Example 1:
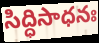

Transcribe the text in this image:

సిద్ధిసాధనః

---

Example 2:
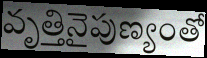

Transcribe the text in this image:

వృత్తినైపుణ్యంతో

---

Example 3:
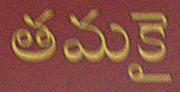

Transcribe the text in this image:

తమకై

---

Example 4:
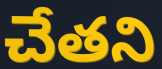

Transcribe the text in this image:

చేతని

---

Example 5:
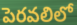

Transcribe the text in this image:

పెరవలిలో